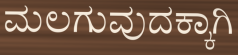
ಮಲಗುವುದಕ್ಕಾಗಿ